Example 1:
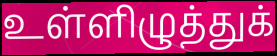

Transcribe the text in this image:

உள்ளிழுத்துக்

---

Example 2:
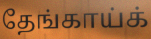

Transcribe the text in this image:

தேங்காய்க்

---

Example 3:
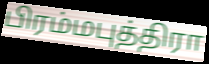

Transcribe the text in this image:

பிரம்மபுத்திரா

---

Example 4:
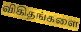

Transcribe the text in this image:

விகிதங்களை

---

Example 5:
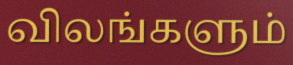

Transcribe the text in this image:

விலங்களும்